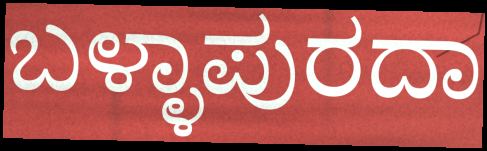
ಬಳ್ಳಾಪುರದಾ